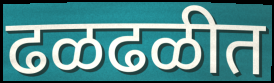
ढळढळीत